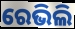
ରେଭିଲି